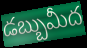
డబ్బుమీద